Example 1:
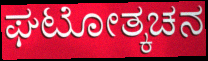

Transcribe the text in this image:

ಘಟೋತ್ಕಚನ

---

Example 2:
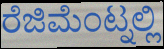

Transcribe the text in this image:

ರೆಜಿಮೆಂಟ್ನಲ್ಲಿ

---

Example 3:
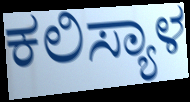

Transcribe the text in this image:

ಕಲಿಸ್ಯಾಳ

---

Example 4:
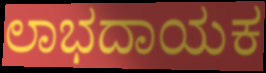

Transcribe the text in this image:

ಲಾಭದಾಯಕ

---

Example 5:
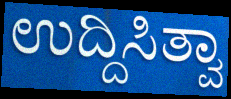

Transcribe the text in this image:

ಉದ್ದಿಸಿತ್ವಾ